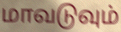
மாவடுவும்